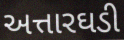
અત્તારઘડી